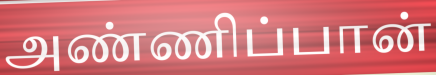
அண்ணிப்பான்